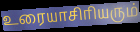
உரையாசிரியரும்